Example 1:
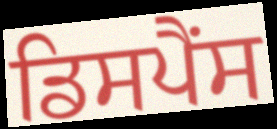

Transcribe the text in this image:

ਡਿਸਪੈਂਸ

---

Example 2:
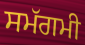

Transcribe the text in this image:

ਸਮੱਗਮੀ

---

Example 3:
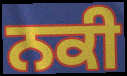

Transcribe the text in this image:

ਨਕੀ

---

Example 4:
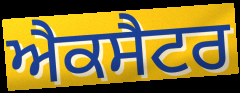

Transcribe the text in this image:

ਐਕਸੈਟਰ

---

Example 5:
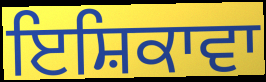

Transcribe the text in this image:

ਇਸ਼ਿਕਾਵਾ